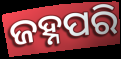
ଜହ୍ନପରି